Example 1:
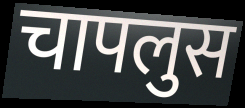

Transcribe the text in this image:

चापलुस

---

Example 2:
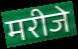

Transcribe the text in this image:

मरीजे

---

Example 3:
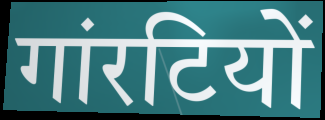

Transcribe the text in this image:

गांरटियों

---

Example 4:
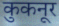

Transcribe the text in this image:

कुकनूर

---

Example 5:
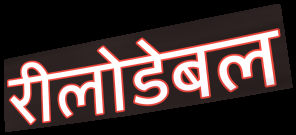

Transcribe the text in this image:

रीलोडेबल